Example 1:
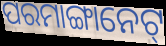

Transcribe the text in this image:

ପରମାଙ୍ଗାନେଟ୍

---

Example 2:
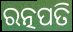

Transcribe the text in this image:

ରତ୍ନପତି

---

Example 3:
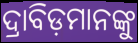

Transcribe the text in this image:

ଦ୍ରାବିଡ଼ମାନଙ୍କୁ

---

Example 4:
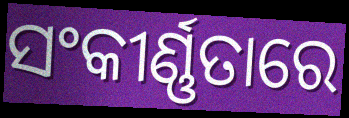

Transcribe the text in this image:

ସଂକୀର୍ଣ୍ଣତାରେ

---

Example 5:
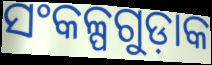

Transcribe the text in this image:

ସଂକଳ୍ପଗୁଡ଼ାକ